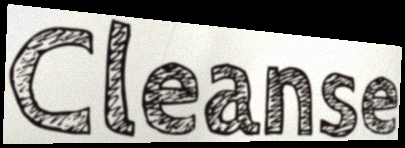
Cleanse